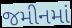
જમીનમાં